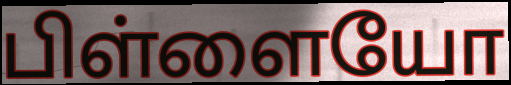
பிள்ளையோ